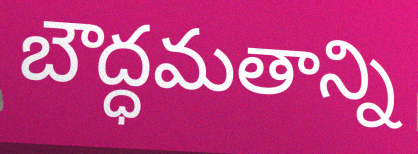
బౌద్ధమతాన్ని